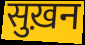
सुख़न